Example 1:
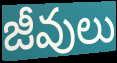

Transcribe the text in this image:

జీవులు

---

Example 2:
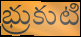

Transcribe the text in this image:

భ్రుకుటి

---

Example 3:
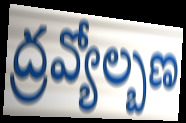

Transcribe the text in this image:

ద్రవ్యోల్బణ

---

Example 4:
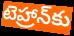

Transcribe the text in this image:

టెహ్రాన్‌కు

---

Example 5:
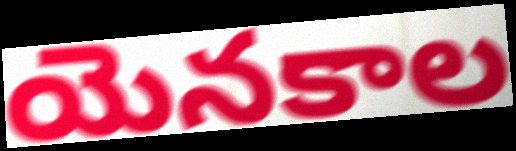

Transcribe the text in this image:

యెనకాల